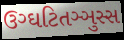
ઉગ્ઘટિતઞ્ઞુસ્સ